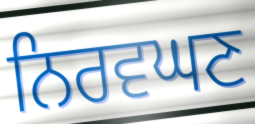
ਨਿਰਵਘਣ